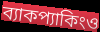
ব্যাকপ্যাকিংও